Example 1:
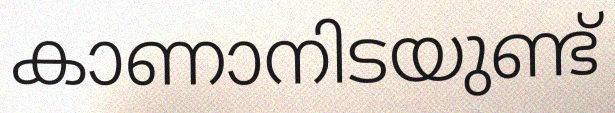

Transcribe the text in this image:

കാണാനിടയുണ്ട്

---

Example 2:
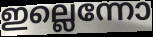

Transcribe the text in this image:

ഇല്ലെന്നോ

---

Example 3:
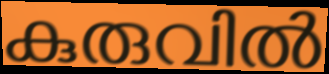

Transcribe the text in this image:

കുരുവിൽ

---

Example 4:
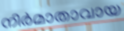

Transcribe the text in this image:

നിർമാതാവായ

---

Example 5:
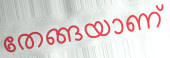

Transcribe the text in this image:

തേങ്ങയാണ്